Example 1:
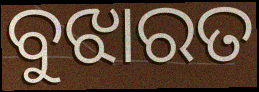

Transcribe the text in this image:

ବୁଝାରତ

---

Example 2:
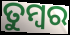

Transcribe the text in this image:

ତୁମ୍ବର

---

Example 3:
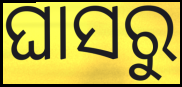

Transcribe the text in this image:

ଘାସରୁ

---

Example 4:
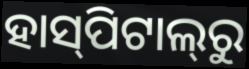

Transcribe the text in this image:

ହାସ୍‍ପିଟାଲ୍‍ରୁ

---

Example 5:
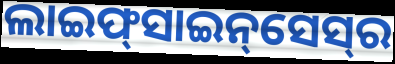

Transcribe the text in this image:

ଲାଇଫ୍‌ସାଇନ୍‌ସେସ୍‌ର